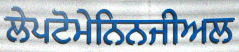
ਲੇਪਟੋਮੇਨਿਨਜੀਅਲ